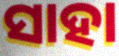
ସାହା